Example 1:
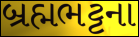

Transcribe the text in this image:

બ્રહ્મભટ્ટના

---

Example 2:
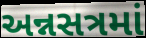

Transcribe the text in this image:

અન્નસત્રમાં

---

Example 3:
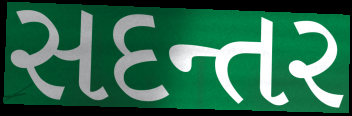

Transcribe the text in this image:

સદન્તર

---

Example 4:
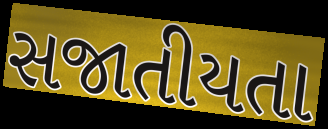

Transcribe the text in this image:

સજાતીયતા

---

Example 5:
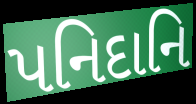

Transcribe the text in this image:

પનિદાનિ